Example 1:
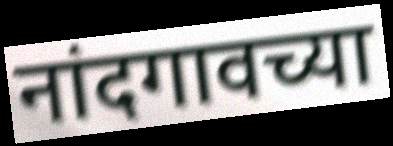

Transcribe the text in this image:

नांदगावच्या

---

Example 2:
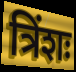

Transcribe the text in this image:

त्रिंशः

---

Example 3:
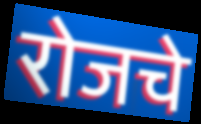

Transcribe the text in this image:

रोजचे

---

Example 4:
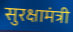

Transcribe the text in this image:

सुरक्षामंत्री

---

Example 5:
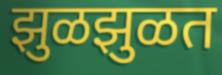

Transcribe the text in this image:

झुळझुळत